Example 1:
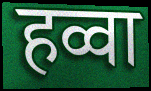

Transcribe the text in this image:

हव्वा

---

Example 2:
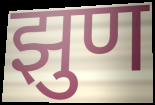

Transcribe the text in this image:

झुण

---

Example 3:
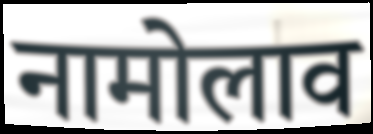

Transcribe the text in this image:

नामोलाव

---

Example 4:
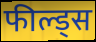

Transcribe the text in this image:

फील्ड्स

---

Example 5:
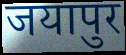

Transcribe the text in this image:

जयापुर